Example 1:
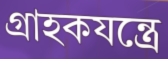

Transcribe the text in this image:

গ্রাহকযন্ত্রে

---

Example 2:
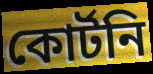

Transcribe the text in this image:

কোর্টনি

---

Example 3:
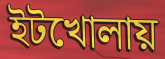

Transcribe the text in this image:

ইটখোলায়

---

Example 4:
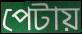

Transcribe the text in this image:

পেটায়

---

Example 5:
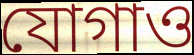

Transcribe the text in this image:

যোগাও